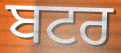
ਬਟਰ